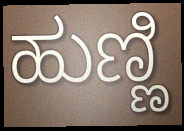
ಹುಣ್ಣಿ